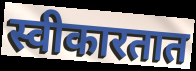
स्वीकारतात